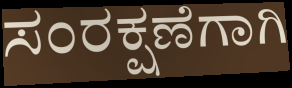
ಸಂರಕ್ಷಣೆಗಾಗಿ